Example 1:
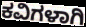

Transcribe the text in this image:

ಕವಿಗಳಾಗಿ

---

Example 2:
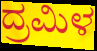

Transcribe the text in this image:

ದ್ರಮಿಳ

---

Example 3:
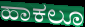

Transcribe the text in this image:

ಹಾಕಲೂ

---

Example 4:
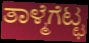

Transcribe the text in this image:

ತಾಳ್ಮೆಗೆಟ್ಟ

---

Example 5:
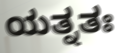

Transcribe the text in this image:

ಯತ್ನತಃ